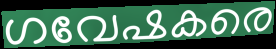
ഗവേഷകരെ